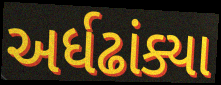
અર્ધઢાંક્યા